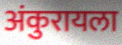
अंकुरायला